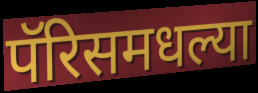
पॅरिसमधल्या